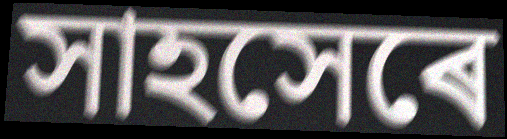
সাহসেৰে